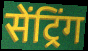
सेंट्रिंग